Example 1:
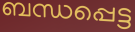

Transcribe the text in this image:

ബന്ധപ്പെട്ട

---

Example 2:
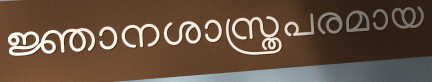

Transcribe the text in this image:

ജ്ഞാനശാസ്ത്രപരമായ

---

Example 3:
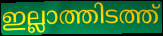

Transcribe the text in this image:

ഇല്ലാത്തിടത്ത്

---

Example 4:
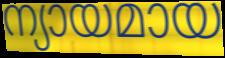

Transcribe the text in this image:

ന്യായമായ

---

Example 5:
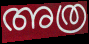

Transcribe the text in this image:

അത്ര